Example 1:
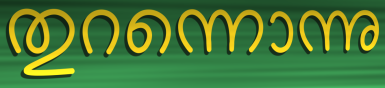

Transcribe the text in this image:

തുറന്നൊന്നു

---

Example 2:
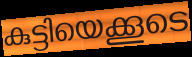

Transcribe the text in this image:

കുട്ടിയെക്കൂടെ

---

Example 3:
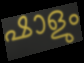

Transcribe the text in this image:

ഷാളും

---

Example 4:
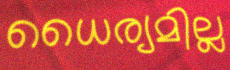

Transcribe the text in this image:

ധൈര്യമില്ല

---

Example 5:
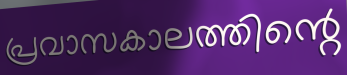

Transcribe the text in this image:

പ്രവാസകാലത്തിന്റെ